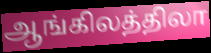
ஆங்கிலத்திலா